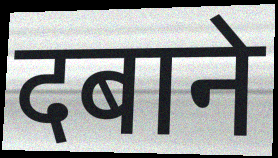
दबाने